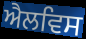
ਐਲਵਿਸ